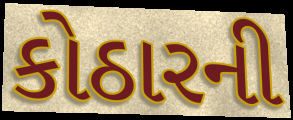
કોઠારની